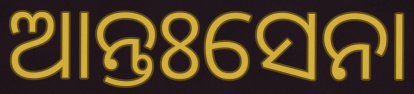
ଆନ୍ତଃସେନା